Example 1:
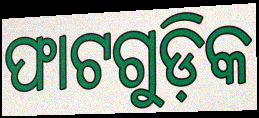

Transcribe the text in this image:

ଫାଟଗୁଡ଼ିକ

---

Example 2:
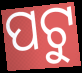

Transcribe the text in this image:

ପଟୁ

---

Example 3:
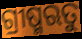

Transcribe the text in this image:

ଗ୍ରୀଷ୍ମଋତୁ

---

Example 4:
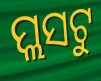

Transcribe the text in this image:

ପ୍ଲସଟୁ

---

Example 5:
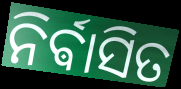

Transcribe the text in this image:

ନିର୍ଵାସିତ